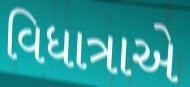
વિધાત્રાએ